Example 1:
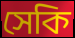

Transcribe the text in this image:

সেকি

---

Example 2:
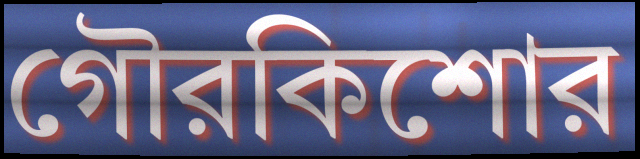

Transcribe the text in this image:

গৌরকিশোর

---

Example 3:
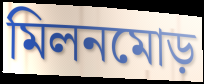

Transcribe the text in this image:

মিলনমোড়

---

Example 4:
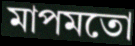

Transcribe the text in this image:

মাপমতো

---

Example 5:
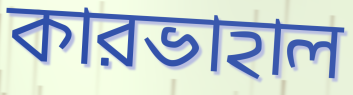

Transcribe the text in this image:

কারভাহাল